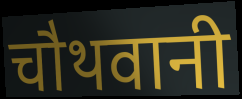
चौथवानी